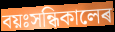
বয়ঃসন্ধিকালেৰ